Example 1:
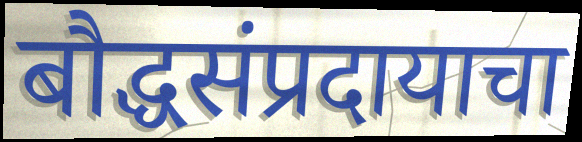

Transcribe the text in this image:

बौद्धसंप्रदायाचा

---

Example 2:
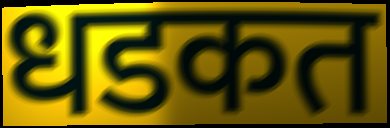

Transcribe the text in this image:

धडकत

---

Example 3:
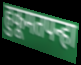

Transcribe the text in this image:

हुकूमतपन्हा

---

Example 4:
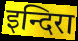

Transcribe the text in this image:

इन्दिरा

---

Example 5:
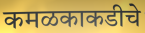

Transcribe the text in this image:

कमळकाकडीचे